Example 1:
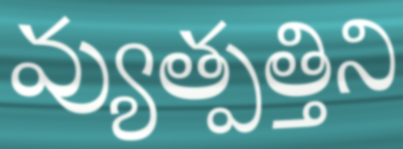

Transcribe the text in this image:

వ్యుత్పత్తిని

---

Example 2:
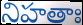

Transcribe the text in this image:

నిహతాః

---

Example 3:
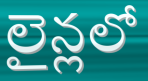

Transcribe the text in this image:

లైన్లలో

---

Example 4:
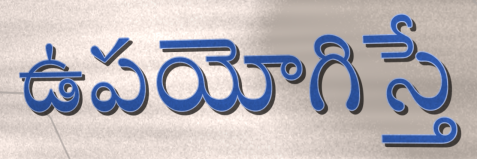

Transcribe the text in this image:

ఉపయోగిస్తే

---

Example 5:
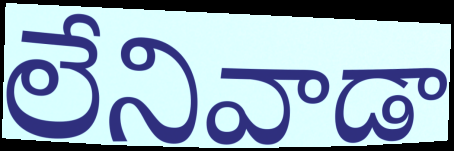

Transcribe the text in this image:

లేనివాడా